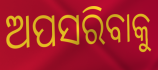
ଅପସରିବାକୁ